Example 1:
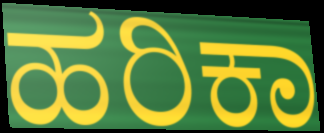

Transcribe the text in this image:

ಹರಿಕಾ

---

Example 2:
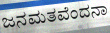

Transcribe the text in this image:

ಜನಮತವೆಂದನಾ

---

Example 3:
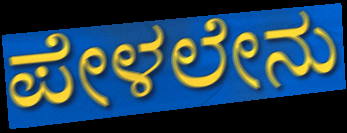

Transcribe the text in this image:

ಪೇಳಲೇನು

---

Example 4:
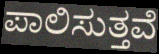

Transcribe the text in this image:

ಪಾಲಿಸುತ್ತವೆ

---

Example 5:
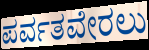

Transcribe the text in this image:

ಪರ್ವತವೇರಲು